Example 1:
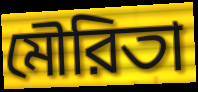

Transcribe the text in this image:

মৌরিতা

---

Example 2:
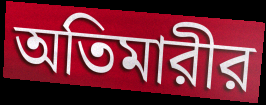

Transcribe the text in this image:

অতিমারীর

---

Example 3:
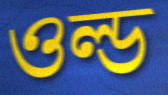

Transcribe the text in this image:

ওল্ড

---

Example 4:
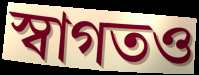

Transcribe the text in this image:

স্বাগতও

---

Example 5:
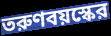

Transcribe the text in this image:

তরুণবয়স্কের